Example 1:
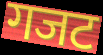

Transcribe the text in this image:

गजट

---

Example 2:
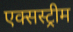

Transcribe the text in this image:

एक्सस्ट्रीम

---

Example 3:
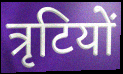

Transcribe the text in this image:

त्रृटियों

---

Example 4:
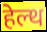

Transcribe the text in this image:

हेल्‍थ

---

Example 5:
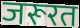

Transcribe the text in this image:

जरूरत